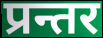
प्रन्तर